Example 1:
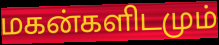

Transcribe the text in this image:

மகன்களிடமும்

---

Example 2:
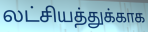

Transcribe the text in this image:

லட்சியத்துக்காக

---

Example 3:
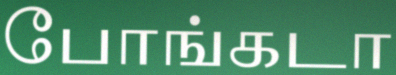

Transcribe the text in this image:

போங்கடா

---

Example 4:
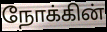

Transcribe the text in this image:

நோக்கின்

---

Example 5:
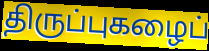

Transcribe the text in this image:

திருப்புகழைப்